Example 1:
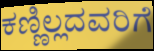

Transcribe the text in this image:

ಕಣ್ಣಿಲ್ಲದವರಿಗೆ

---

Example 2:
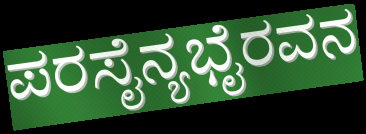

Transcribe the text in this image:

ಪರಸೈನ್ಯಭೈರವನ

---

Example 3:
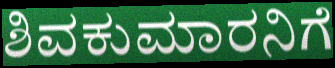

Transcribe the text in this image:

ಶಿವಕುಮಾರನಿಗೆ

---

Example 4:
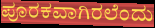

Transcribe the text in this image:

ಪೂರಕವಾಗಿರಲೆಂದು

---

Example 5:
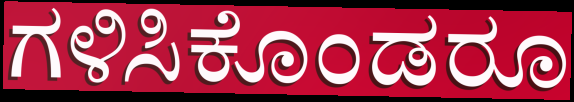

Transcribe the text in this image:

ಗಳಿಸಿಕೊಂಡರೂ